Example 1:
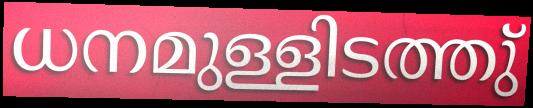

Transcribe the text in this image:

ധനമുള്ളിടത്തു്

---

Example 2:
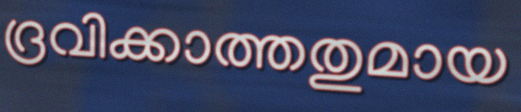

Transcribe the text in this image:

ദ്രവിക്കാത്തതുമായ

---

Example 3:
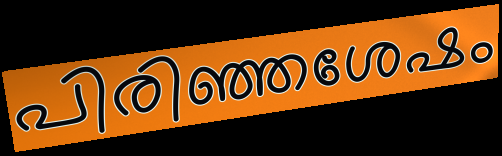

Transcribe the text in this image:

പിരിഞ്ഞശേഷം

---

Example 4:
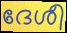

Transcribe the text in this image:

ദേശീ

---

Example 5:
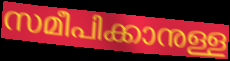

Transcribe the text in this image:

സമീപിക്കാനുള്ള